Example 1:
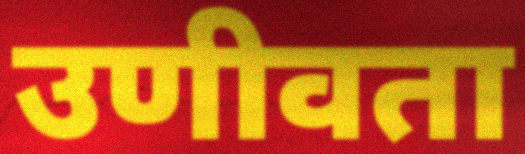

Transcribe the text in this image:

उणीवता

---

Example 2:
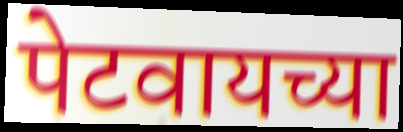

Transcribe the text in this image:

पेटवायच्या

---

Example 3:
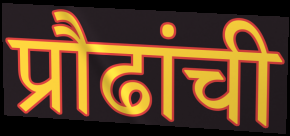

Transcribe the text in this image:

प्रौढांची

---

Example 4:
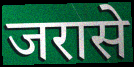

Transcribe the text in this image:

जरासे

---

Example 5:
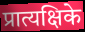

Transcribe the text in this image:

प्रात्यक्षिके